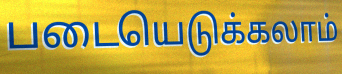
படையெடுக்கலாம்